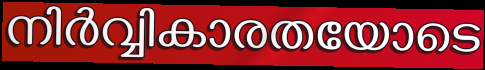
നിർവ്വികാരതയോടെ